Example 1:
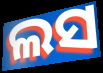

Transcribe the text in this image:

ଲସ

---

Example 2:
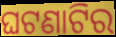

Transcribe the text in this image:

ଘଟଣାଟିର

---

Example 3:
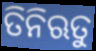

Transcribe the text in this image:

ତିନିଋତୁ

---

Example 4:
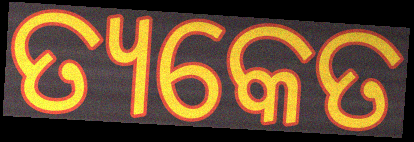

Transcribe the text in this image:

ତ୍ୟକେତ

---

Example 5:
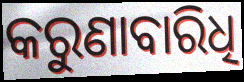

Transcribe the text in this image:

କରୁଣାବାରିଧି